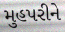
મુહપરીને